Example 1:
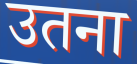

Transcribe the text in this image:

उतना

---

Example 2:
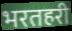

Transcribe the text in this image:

भरतहरी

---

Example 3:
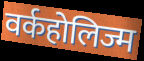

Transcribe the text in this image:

वर्कहोलिज्म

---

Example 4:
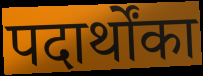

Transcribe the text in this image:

पदार्थोंका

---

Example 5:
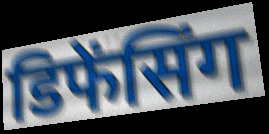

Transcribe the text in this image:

डिफेंसिंग